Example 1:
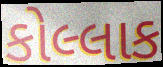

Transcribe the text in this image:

કોલ્લાક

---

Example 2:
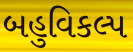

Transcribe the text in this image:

બહુવિકલ્પ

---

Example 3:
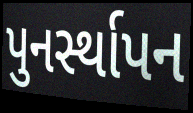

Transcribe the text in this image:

પુનર્સ્થાપન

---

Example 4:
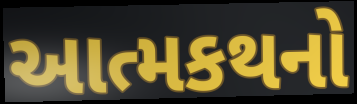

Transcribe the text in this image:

આત્મકથનો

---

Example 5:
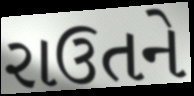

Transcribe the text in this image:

રાઉતને